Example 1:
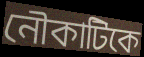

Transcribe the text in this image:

নৌকাটিকে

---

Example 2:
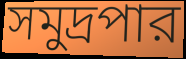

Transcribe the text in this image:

সমুদ্রপার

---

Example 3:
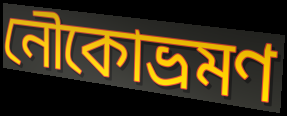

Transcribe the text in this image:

নৌকোভ্রমণ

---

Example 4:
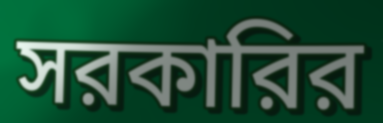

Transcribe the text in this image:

সরকারির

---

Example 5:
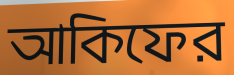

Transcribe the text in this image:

আকিফের